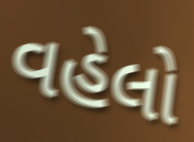
વહેલો